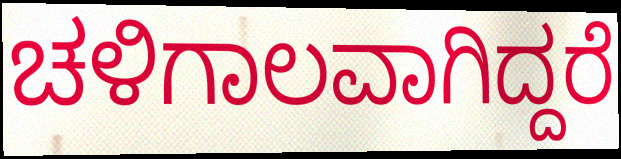
ಚಳಿಗಾಲವಾಗಿದ್ದರೆ